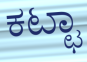
ಕಟ್ಟಾ